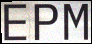
EPM